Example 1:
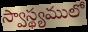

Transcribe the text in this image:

స్వాస్థ్యములో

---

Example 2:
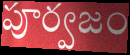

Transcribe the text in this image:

పూర్వజం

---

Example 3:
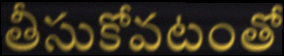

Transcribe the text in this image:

తీసుకోవటంతో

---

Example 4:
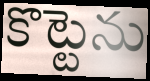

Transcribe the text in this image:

కొట్టెను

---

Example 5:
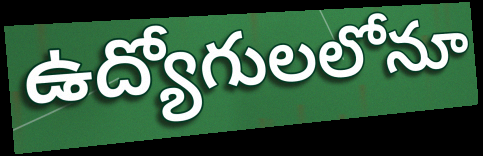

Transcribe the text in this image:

ఉద్యోగులలోనూ